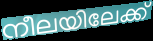
നീലയിലേക്ക്